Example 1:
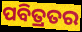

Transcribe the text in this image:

ପବିତ୍ରତର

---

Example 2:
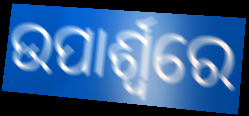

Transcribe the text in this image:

ଉପାର୍ଶ୍ଵରେ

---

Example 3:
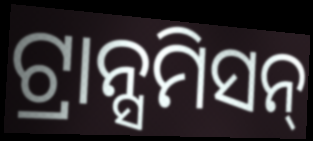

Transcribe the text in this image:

ଟ୍ରାନ୍ସମିସନ୍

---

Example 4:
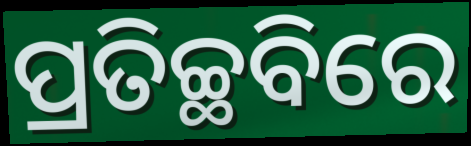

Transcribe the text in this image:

ପ୍ରତିଚ୍ଛବିରେ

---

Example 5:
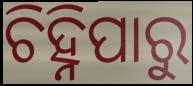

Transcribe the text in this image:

ଚିହ୍ନିପାରୁ